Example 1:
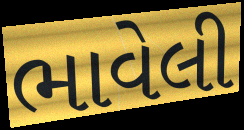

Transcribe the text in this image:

ભાવેલી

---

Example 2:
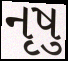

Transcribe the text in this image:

નૃષુ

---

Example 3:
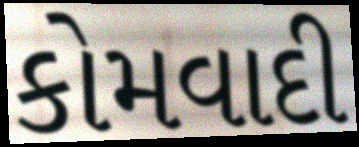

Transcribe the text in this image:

કોમવાદી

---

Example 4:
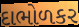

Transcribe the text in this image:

દાભોળકર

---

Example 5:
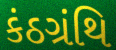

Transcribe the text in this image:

કંઠગ્રંથિ